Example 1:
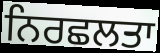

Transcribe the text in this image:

ਨਿਰਛਲਤਾ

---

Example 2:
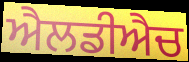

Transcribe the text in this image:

ਐਲਡੀਐਚ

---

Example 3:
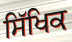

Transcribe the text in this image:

ਸਿੱਖਿਕ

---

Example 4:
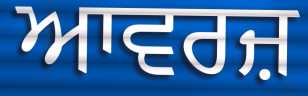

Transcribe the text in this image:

ਆਵਰਜ਼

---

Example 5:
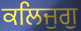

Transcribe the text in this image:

ਕਲਿਜੁਗੁ